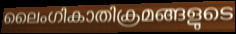
ലൈംഗികാതിക്രമങ്ങളുടെ